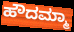
ಹೌದಮ್ಮಾ